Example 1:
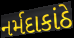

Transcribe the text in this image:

નર્મદાકાંઠે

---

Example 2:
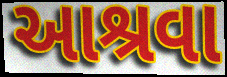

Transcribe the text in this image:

આશ્રવા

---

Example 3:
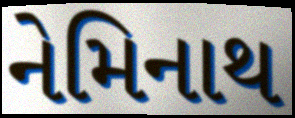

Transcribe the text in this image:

નેમિનાથ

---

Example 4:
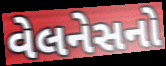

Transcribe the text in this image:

વેલનેસનો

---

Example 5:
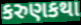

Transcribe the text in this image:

કરુણકથા